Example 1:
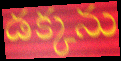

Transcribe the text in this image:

డక్కను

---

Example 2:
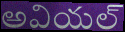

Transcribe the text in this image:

అవియల్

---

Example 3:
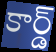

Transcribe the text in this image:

కార్డ్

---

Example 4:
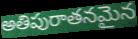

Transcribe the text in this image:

అతిపురాతనమైన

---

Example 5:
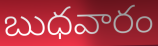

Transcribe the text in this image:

బుధవారం